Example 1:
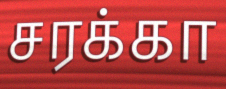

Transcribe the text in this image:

சரக்கா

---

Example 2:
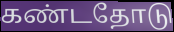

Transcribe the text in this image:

கண்டதோடு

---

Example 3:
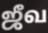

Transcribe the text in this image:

ஜீவ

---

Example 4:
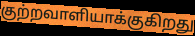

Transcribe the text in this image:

குற்றவாளியாக்குகிறது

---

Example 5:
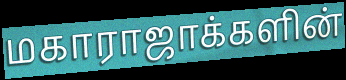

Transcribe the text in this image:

மகாராஜாக்களின்